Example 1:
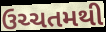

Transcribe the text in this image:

ઉચ્ચતમથી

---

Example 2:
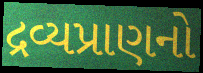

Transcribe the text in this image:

દ્રવ્યપ્રાણનો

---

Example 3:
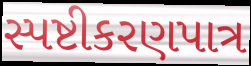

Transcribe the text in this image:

સ્પષ્ટીકરણપાત્ર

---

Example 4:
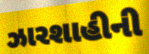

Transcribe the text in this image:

ઝારશાહીની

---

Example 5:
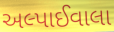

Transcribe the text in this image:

અલ્પાઈવાલા